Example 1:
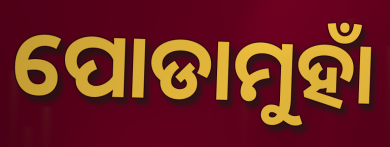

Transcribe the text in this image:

ପୋଡାମୁହାଁ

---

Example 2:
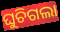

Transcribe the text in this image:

ଘୁଚିଗଲା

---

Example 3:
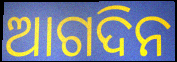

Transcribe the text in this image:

ଆଗଦିନ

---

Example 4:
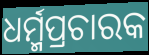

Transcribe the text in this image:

ଧର୍ମ୍ମପ୍ରଚାରକ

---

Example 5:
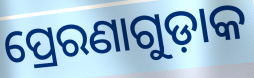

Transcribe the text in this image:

ପ୍ରେରଣାଗୁଡ଼ାକ